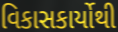
વિકાસકાર્યોથી